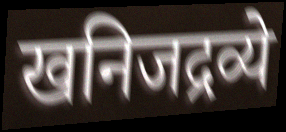
खनिजद्रव्ये